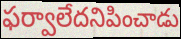
ఫర్వాలేదనిపించాడు